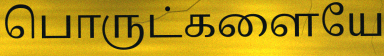
பொருட்களையே